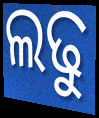
ଲଢୁ